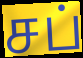
சப்